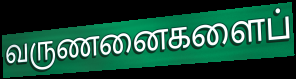
வருணனைகளைப்